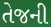
તેજની